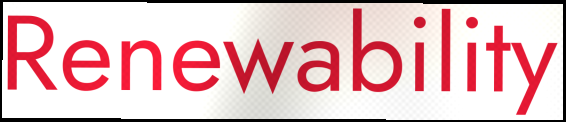
Renewability